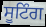
ਸੂਟਿੰਗ